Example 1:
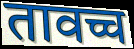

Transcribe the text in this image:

तावच्च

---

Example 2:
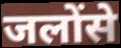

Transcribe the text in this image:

जलोंसे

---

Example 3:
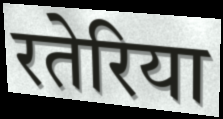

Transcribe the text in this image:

रतेरिया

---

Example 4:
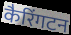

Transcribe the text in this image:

कैरिंगटन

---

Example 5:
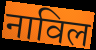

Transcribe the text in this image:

नाविल